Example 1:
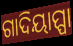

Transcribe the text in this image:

ଗାଦିୟାପ୍ପା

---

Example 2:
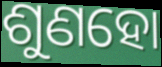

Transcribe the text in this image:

ଶୁଣହୋ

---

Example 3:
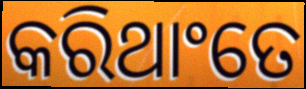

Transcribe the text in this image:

କରିଥାଂତେ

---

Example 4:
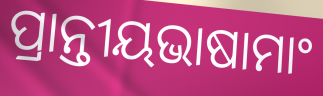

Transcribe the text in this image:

ପ୍ରାନ୍ତୀୟଭାଷାମାଂ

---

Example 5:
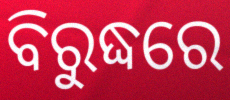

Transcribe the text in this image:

ବିରୁଦ୍ଧରେ